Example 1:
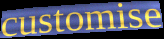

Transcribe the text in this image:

customise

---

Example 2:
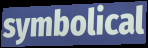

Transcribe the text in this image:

symbolical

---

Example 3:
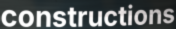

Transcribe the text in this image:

constructions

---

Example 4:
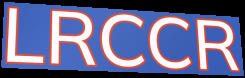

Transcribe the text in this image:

LRCCR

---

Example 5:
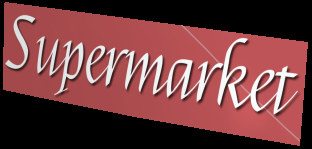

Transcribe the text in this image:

Supermarket